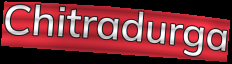
Chitradurga